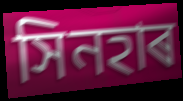
সিনহাৰ